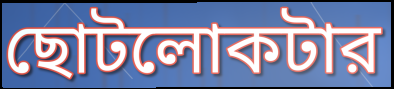
ছোটলোকটার